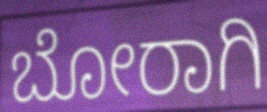
ಬೋರಾಗಿ